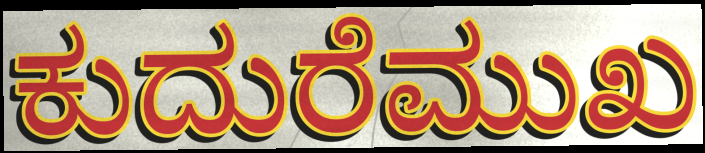
ಕುದುರೆಮುಖ